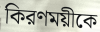
কিরণময়ীকে